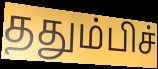
ததும்பிச்